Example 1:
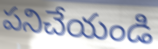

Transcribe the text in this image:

పనిచేయండి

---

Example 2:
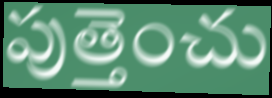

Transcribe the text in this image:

పుత్తెంచు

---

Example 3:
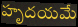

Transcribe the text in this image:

హృదయమే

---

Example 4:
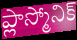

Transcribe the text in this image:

ప్లాస్మోనిక్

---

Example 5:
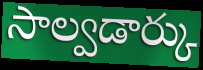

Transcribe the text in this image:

సాల్వడార్కు